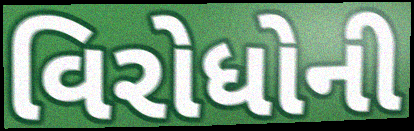
વિરોધોની